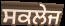
ਸਕਲੇਜ